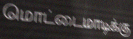
மொட்டைமாடிக்கு